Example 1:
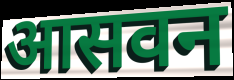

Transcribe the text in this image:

आसवन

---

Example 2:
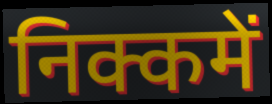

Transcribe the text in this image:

निक्कमें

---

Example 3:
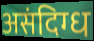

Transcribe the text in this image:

असंदिग्ध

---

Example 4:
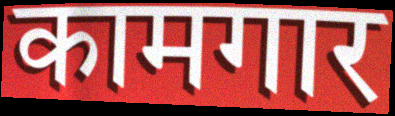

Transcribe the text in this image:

कामगार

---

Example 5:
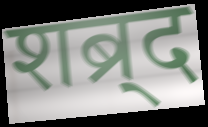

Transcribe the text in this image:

शब्र्द